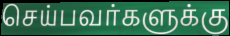
செய்பவர்களுக்கு